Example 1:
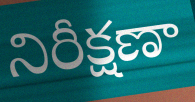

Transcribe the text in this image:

నిరీక్షణా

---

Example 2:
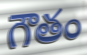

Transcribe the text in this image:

గౌతం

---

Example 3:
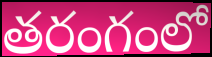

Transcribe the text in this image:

తరంగంలో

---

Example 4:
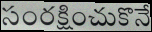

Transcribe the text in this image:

సంరక్షించుకొనే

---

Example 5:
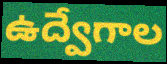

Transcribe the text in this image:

ఉద్వేగాల